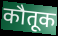
कौतूक